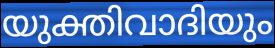
യുക്തിവാദിയും